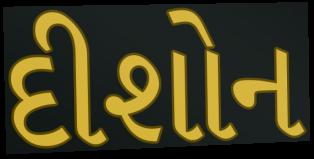
દીશોન